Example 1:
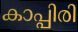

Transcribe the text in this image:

കാപ്പിരി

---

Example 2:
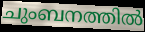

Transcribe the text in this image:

ചുംബനത്തിൽ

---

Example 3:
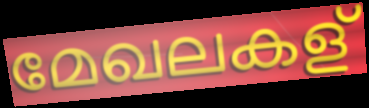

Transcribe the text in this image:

മേഖലകള്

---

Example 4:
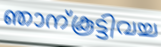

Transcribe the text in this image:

ഞാന്കൂട്ടിവച്ച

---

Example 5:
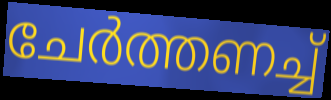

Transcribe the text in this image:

ചേർത്തണച്ച്